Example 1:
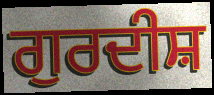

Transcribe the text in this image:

ਗੁਰਦੀਸ਼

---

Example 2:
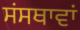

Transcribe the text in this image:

ਸਂਸਥਾਵਾਂ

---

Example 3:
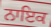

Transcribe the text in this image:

ਨਾਇਕ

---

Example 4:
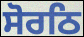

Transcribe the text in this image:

ਸੋਰਠਿ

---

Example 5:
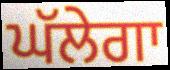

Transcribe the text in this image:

ਘੱਲੇਗਾ